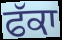
ਫੱਕਾ